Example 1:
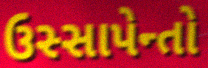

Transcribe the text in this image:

ઉસ્સાપેન્તો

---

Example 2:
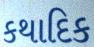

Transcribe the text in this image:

કથાદિક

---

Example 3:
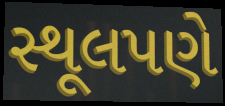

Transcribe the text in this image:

સ્થૂલપણે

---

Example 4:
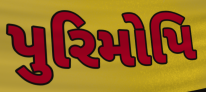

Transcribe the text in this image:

પુરિમોપિ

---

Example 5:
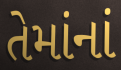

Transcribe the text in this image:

તેમાંનાં